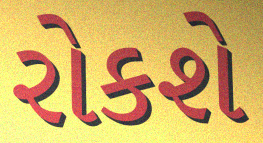
રોકશે